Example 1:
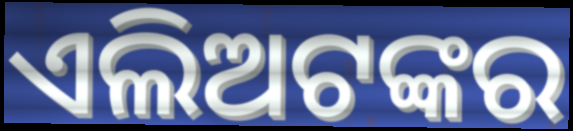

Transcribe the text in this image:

ଏଲିଅଟଙ୍କର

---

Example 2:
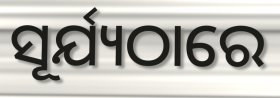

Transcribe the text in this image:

ସୂର୍ଯ୍ୟଠାରେ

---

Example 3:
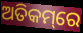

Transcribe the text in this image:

ଅତିକମ୍‌ରେ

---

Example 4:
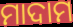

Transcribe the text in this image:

ମାଦାମ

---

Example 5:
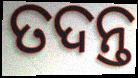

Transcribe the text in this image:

ତଦନ୍ତ